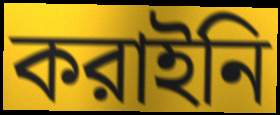
করাইনি